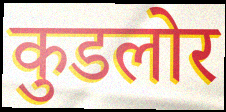
कुडलोर